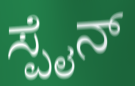
ಸ್ಪೈನ್